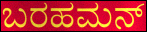
ಬರಹಮನ್